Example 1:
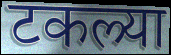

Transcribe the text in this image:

टकल्या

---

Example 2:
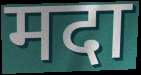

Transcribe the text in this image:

मदा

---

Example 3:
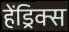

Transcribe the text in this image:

हेंड्रिक्स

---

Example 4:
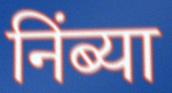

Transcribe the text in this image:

निंब्या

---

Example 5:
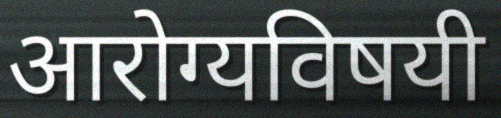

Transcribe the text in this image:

आरोग्यविषयी